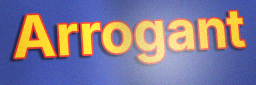
Arrogant